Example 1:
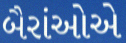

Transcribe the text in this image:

બૈરાંઓએ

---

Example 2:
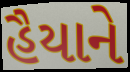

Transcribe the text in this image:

હૈયાને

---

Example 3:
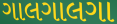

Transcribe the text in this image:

ગાલગાલગા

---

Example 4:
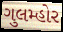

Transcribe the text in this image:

ગુલમ્હોર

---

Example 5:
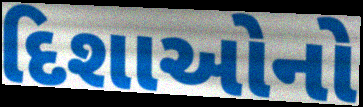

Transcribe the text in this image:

દિશાઓનો